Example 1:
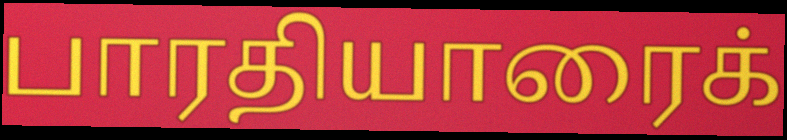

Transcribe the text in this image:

பாரதியாரைக்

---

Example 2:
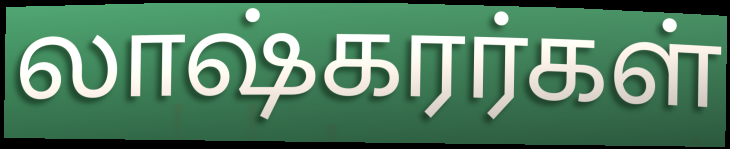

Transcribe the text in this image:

லாஷ்கரர்கள்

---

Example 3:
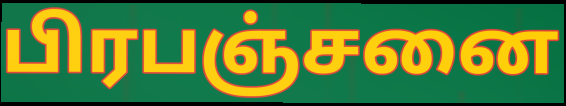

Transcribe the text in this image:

பிரபஞ்சனை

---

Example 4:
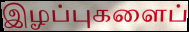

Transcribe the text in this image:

இழப்புகளைப்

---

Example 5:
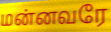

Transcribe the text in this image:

மன்னவரே